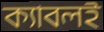
ক্যাবলই